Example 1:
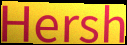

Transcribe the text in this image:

Hersh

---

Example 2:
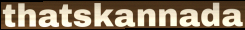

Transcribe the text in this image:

thatskannada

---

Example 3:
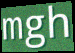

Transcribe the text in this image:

mgh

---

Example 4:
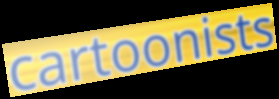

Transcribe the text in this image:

cartoonists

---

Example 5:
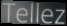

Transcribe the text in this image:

Tellez